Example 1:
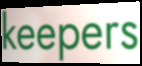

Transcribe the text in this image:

keepers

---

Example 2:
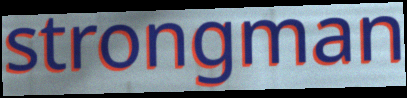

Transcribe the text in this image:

strongman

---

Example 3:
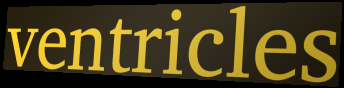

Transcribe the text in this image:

ventricles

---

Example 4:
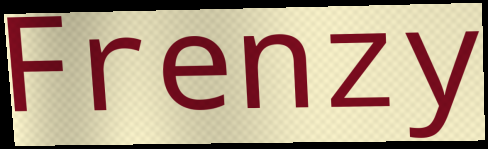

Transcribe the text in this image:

Frenzy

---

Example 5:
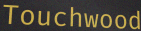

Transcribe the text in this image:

Touchwood